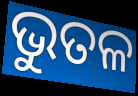
ଭୁତଳ